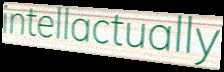
intellactually